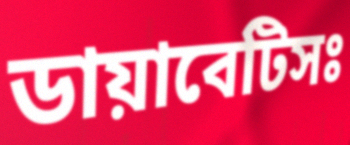
ডায়াবেটিসঃ